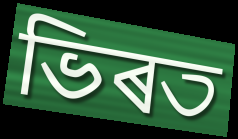
ভিৰত